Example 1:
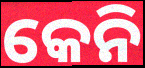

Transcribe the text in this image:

କେନି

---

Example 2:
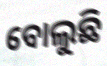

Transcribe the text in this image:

ବୋଲୁଛି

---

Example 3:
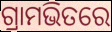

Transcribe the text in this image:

ଗ୍ରାମଭିତରେ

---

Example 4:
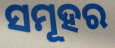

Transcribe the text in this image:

ସମୂହର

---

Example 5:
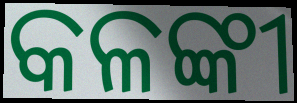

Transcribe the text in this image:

କଳଙ୍କୀ